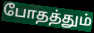
போதத்தும்